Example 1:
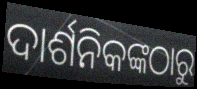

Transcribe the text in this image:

ଦାର୍ଶନିକଙ୍କଠାରୁ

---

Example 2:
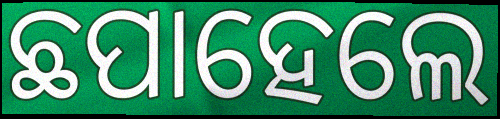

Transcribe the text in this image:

ଛପାହେଲେ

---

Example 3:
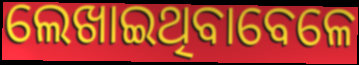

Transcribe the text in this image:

ଲେଖାଇଥିବାବେଳେ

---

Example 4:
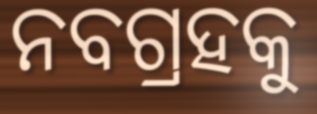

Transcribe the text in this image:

ନବଗ୍ରହକୁ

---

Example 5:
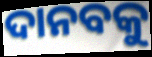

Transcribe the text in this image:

ଦାନବକୁ